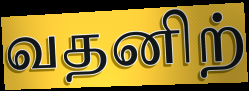
வதனிற்